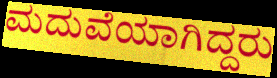
ಮದುವೆಯಾಗಿದ್ದರು